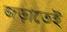
জড়াতেই